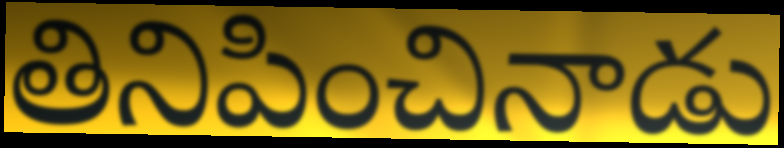
తినిపించినాడు